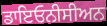
ਡਾਇਓਨੀਸੀਅਨ